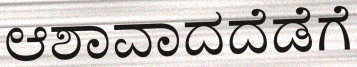
ಆಶಾವಾದದೆಡೆಗೆ